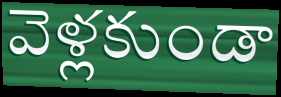
వెళ్లకుండా